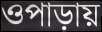
ওপাড়ায়